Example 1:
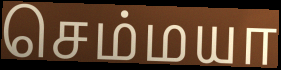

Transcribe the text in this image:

செம்மயா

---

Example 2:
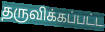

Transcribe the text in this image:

தருவிக்கப்பட்ட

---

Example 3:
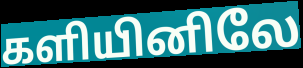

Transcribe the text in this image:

களியினிலே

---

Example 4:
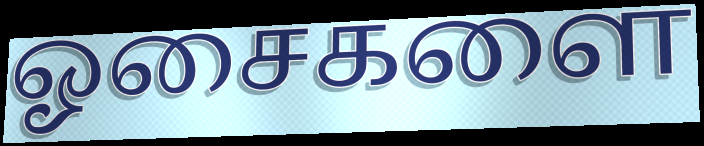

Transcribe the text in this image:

ஓசைகளை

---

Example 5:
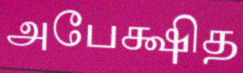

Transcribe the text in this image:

அபேக்ஷித